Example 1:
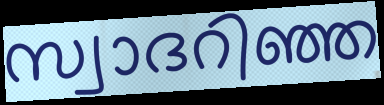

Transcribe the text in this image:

സ്വാദറിഞ്ഞ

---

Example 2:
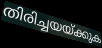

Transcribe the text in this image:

തിരിച്ചയയ്ക്കുക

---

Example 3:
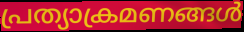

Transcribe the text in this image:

പ്രത്യാക്രമണങ്ങൾ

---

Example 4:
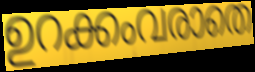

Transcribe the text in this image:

ഉറക്കംവരാതെ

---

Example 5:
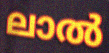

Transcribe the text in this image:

ലാൽ